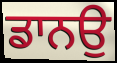
ਡਾਨਉ